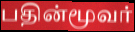
பதின்மூவர்